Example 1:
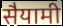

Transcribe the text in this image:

सैयामी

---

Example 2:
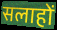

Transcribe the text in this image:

सलाहों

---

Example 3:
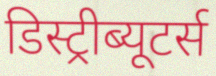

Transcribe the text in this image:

डिस्ट्रीब्यूटर्स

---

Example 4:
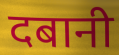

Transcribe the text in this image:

दबानी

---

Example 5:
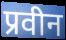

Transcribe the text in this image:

प्रवीन